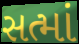
સત્માં